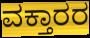
ವಕ್ತಾರರ